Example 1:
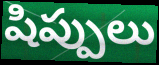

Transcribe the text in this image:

షిప్పులు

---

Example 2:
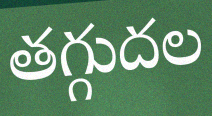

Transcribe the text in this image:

తగ్గుదల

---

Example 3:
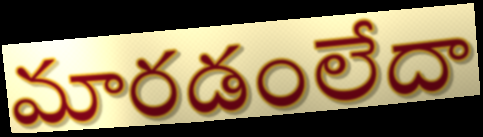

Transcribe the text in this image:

మారడంలేదా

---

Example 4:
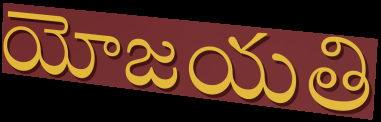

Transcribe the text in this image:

యోజయతి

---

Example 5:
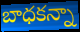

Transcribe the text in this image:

బాధకన్నా